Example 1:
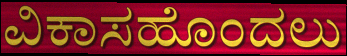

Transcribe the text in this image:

ವಿಕಾಸಹೊಂದಲು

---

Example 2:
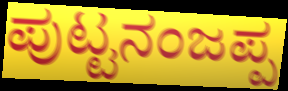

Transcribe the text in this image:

ಪುಟ್ಟನಂಜಪ್ಪ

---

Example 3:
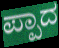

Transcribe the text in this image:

ಪ್ಪಾದ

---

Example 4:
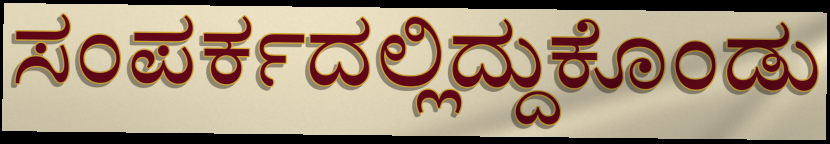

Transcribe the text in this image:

ಸಂಪರ್ಕದಲ್ಲಿದ್ದುಕೊಂಡು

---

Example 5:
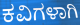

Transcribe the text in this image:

ಕವಿಗಳಾಗಿ